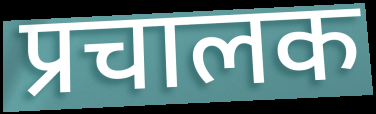
प्रचालक